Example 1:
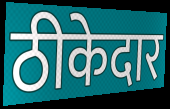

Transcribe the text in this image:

ठीकेदार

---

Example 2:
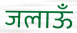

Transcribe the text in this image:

जलाऊँ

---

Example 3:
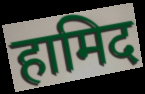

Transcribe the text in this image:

हामिद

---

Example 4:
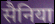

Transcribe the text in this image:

सैनिया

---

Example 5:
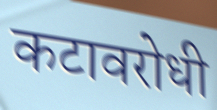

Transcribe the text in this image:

कटावरोधी